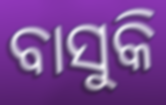
ବାସୁକି